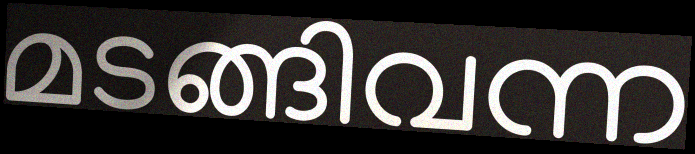
മടങ്ങിവന്ന